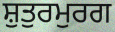
ਸ਼ੁਤੁਰਮੁਰਗ